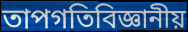
তাপগতিবিজ্ঞানীয়